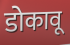
डोकावू